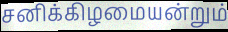
சனிக்கிழமையன்றும்